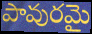
పావురమై